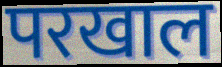
परखाल